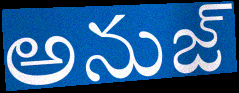
అనుజ్